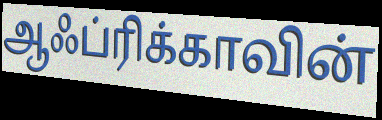
ஆஃப்ரிக்காவின்